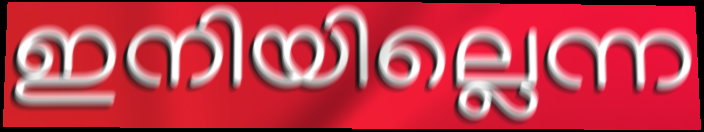
ഇനിയില്ലെന്ന